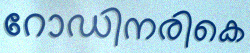
റോഡിനരികെ